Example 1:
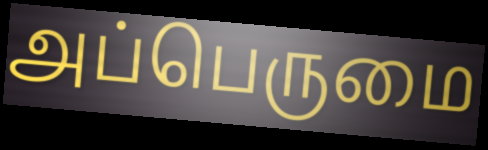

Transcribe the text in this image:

அப்பெருமை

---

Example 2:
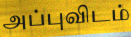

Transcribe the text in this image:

அப்புவிடம்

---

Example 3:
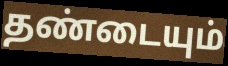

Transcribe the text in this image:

தண்டையும்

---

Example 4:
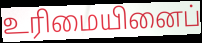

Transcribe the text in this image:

உரிமையினைப்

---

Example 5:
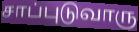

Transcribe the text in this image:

சாப்புடுவாரு